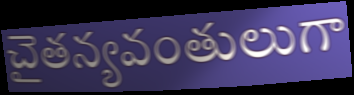
చైతన్యవంతులుగా